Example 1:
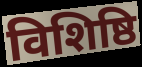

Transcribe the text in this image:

विशिष्ठि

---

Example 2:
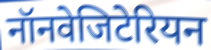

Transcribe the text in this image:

नॉनवेजिटेरियन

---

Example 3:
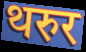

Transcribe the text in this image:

थरुर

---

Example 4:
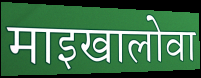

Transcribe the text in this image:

माइखालोवा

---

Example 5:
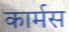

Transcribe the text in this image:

कार्मस